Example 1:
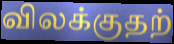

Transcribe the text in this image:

விலக்குதற்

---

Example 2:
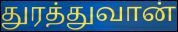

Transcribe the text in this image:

துரத்துவான்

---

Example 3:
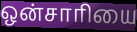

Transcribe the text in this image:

ஒன்சாரியை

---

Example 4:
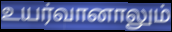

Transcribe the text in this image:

உயர்வானாலும்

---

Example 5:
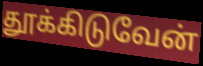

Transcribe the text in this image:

தூக்கிடுவேன்